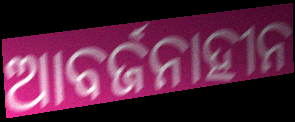
ଆବର୍ଜନାହୀନ